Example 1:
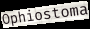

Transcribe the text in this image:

Ophiostoma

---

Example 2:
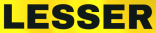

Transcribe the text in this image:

LESSER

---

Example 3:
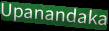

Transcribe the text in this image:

Upanandaka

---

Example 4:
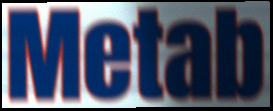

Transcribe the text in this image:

Metab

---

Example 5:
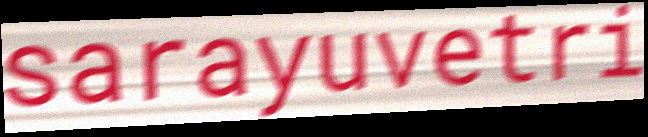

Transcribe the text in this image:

sarayuvetri